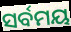
ସର୍ବମୟ